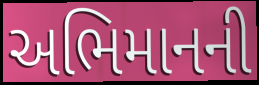
અભિમાનની